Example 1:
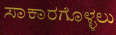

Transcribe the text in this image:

ಸಾಕಾರಗೊಳ್ಳಲು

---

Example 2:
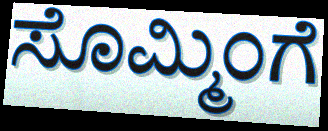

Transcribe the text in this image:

ಸೊಮ್ಮಿಂಗೆ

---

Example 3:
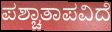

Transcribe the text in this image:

ಪಶ್ಚಾತಾಪವಿದೆ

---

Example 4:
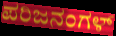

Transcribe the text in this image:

ಪರಿಜನಂಗಳ್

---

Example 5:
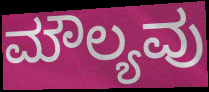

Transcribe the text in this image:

ಮೌಲ್ಯವು